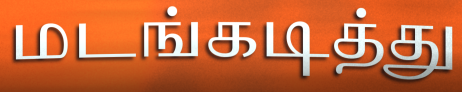
மடங்கடித்து